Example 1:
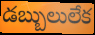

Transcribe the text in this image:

డబ్బులులేక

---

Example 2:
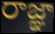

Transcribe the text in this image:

రాజ్ఞా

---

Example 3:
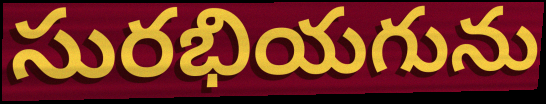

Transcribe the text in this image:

సురభియగును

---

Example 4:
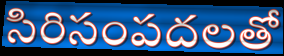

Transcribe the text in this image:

సిరిసంపదలతో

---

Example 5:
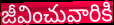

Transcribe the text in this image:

జీవించువారికి